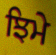
ਝਿਮੇ